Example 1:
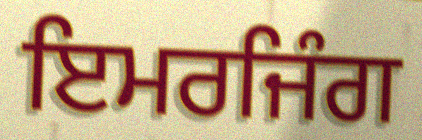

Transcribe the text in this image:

ਇਮਰਜਿੰਗ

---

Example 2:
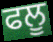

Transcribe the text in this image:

ਫਲੂ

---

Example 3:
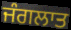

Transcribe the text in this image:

ਜੰਗਲਾਤ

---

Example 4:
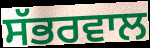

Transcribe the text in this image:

ਸੱਭਰਵਾਲ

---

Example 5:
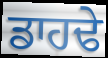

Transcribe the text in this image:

ਡਾਹਢੇ